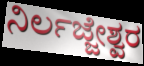
ನಿರ್ಲಜ್ಜೇಶ್ವರ